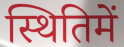
स्थितिमें